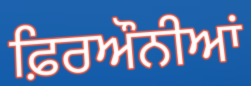
ਫ਼ਿਰਔਨੀਆਂ